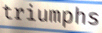
triumphs